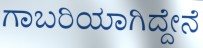
ಗಾಬರಿಯಾಗಿದ್ದೇನೆ